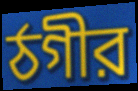
ঠগীর